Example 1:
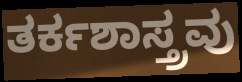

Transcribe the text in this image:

ತರ್ಕಶಾಸ್ತ್ರವು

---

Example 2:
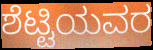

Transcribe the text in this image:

ಶೆಟ್ಟಿಯವರ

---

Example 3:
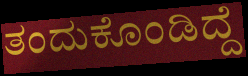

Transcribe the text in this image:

ತಂದುಕೊಂಡಿದ್ದೆ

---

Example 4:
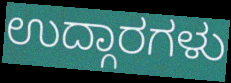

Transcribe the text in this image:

ಉದ್ಗಾರಗಳು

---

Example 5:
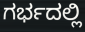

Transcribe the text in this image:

ಗರ್ಭದಲ್ಲಿ